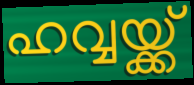
ഹവ്വയ്ക്ക്